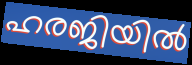
ഹരജിയിൽ